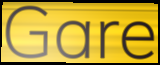
Gare